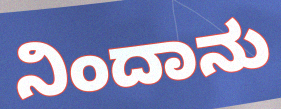
ನಿಂದಾನು